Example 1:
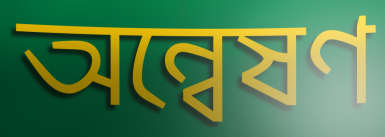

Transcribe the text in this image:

অন্বেষণ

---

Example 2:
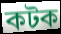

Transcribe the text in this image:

কটক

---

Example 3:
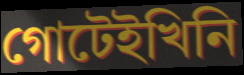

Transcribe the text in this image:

গোটেইখিনি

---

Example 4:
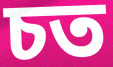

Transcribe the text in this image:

চত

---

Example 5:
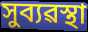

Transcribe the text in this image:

সুব্যৱস্থা